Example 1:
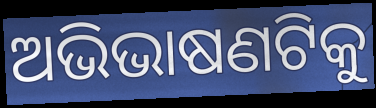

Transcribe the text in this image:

ଅଭିଭାଷଣଟିକୁ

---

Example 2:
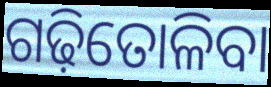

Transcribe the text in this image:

ଗଢ଼ିତୋଳିବା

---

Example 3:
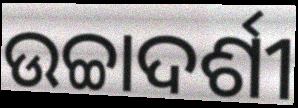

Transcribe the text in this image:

ଉଚ୍ଚାଦର୍ଶୀ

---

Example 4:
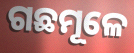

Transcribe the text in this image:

ଗଛମୂଳେ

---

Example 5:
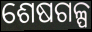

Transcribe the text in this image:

ଶେଷଗଳ୍ପ